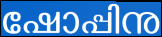
ഷോപ്പിനു